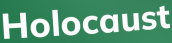
Holocaust